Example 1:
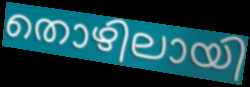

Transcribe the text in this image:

തൊഴിലായി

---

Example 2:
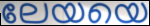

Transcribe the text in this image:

ലേയയെ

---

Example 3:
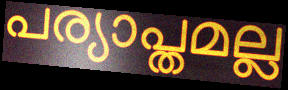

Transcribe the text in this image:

പര്യാപ്തമല്ല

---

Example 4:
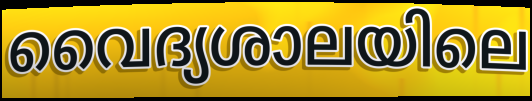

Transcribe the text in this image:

വൈദ്യശാലയിലെ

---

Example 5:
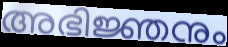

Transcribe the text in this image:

അഭിജ്ഞനും